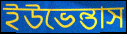
ইউভেন্তাস